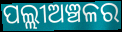
ପଲ୍ଲୀଅଞ୍ଚଳର